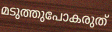
മടുത്തുപോകരുത്